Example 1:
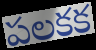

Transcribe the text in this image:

పలకక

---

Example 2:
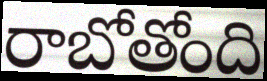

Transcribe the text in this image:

రాబోతోంది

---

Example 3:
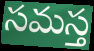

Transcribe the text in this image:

సమస్త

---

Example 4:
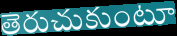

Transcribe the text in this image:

తెరుచుకుంటూ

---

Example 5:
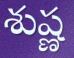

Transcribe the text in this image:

శుష్ణ